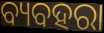
ବ୍ୟବହରା